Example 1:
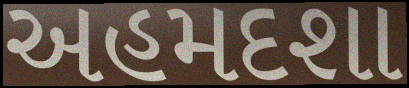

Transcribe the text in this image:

અહમદશા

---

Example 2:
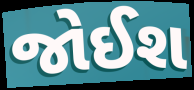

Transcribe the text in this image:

જોઈશ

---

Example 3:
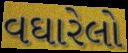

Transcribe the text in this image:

વઘારેલો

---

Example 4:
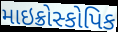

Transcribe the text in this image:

માઇક્રોસ્કોપિક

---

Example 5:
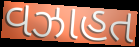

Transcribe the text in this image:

વઝાહત